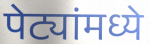
पेट्यांमध्ये